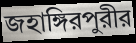
জহাঙ্গিরপুরীর